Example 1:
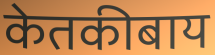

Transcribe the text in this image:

केतकीबाय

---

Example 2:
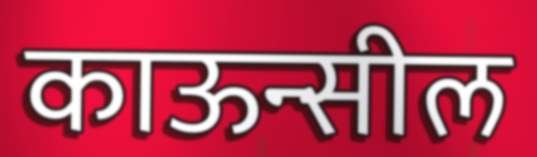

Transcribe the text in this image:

काऊन्सील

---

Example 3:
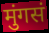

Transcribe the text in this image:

मुंगसं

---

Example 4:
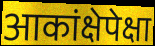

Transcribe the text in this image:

आकांक्षेपेक्षा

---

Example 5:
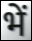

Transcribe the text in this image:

भें